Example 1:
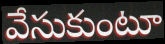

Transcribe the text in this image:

వేసుకుంటూ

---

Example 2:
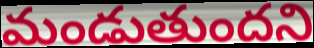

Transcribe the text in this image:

మండుతుందని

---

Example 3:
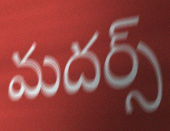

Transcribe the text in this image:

మదర్స్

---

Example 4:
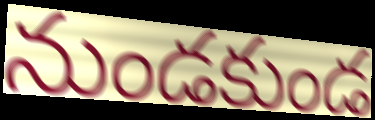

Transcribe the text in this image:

నుండకుండ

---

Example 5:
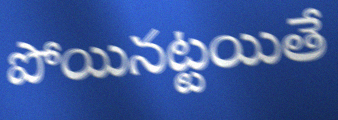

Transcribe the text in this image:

పోయినట్టయితే